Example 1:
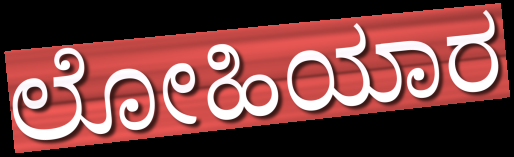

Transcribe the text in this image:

ಲೋಹಿಯಾರ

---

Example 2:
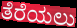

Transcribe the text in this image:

ತೆರೆಯಲು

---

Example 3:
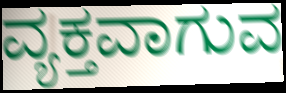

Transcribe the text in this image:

ವ್ಯಕ್ತವಾಗುವ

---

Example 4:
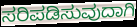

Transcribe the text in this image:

ಸರಿಪಡಿಸುವುದಾಗಿ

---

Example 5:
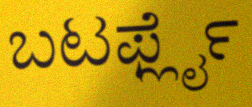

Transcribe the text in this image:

ಬಟರ್ಫ್ಲೈ